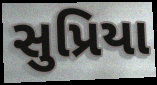
સુપ્રિયા